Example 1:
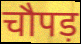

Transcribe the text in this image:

चौपड़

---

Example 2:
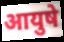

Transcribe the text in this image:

आयुषे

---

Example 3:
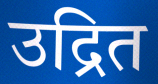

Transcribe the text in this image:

उद्रित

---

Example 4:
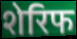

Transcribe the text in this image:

शेरिफ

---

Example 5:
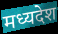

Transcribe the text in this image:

मध्यदेश